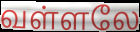
வள்ளலே